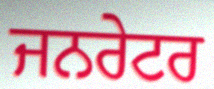
ਜਨਰੇਟਰ